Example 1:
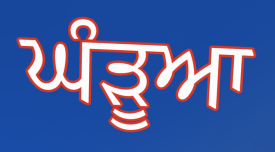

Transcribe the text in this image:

ਘੰੜੂਆ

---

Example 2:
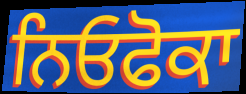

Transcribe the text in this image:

ਨਿਓਫੋਕਾ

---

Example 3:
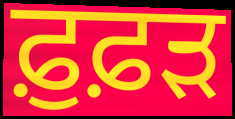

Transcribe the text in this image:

ਫ਼ੁਫ਼ੜ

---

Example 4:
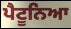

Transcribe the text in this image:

ਪੈਟੂਨਿਆ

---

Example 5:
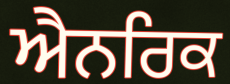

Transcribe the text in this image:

ਐਨਰਿਕ